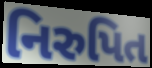
નિરુપિત